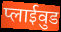
प्लाईवुड